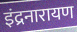
इंद्रनारायण